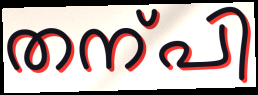
തന്പി